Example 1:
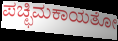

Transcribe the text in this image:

ಪಚ್ಛಿಮಕಾಯತೋ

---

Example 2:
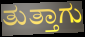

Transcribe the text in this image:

ತುತ್ತಾಗು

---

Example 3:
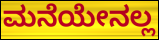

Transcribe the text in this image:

ಮನೆಯೇನಲ್ಲ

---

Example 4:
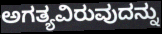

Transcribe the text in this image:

ಅಗತ್ಯವಿರುವುದನ್ನು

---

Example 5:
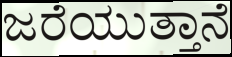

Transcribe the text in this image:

ಜರೆಯುತ್ತಾನೆ